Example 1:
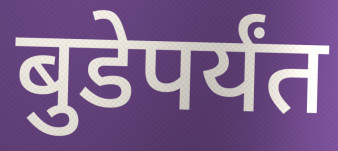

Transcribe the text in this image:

बुडेपर्यंत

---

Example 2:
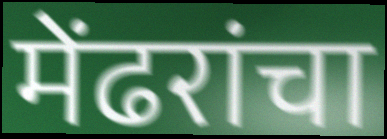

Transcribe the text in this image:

मेंढरांचा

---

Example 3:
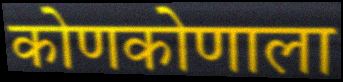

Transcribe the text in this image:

कोणकोणाला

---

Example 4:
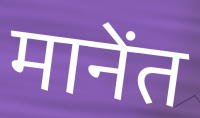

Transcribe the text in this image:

मानेंत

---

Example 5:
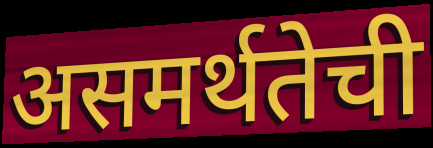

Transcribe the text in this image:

असमर्थतेची